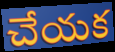
చేయక